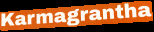
Karmagrantha